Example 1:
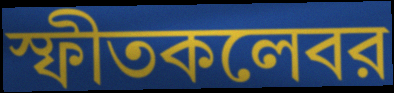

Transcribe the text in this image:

স্ফীতকলেবর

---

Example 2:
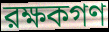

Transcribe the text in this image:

রক্ষকগণ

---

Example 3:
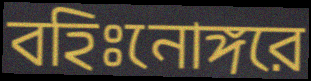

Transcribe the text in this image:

বহিঃনোঙ্গরে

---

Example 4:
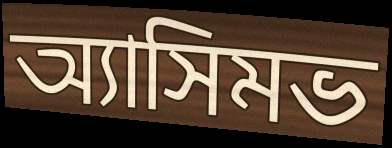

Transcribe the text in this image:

অ্যাসিমভ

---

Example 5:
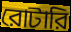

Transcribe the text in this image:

রোটারি